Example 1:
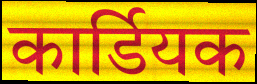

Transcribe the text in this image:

कार्डियक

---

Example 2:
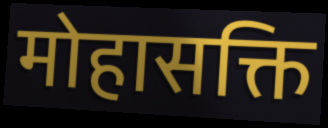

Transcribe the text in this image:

मोहासक्ति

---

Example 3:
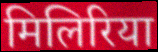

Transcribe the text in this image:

मिलिरिया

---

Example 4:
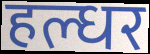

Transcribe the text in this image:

हल्धर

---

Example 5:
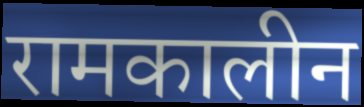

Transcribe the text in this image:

रामकालीन